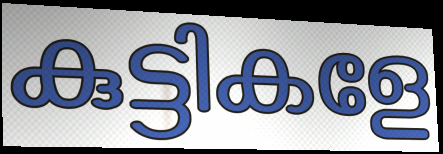
കുട്ടികളേ